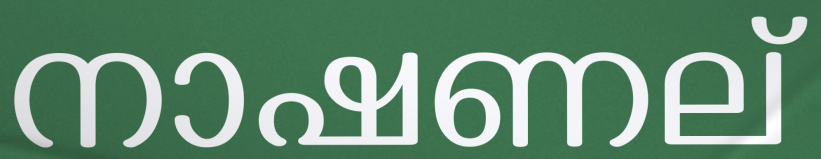
നാഷണല്